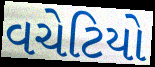
વચેટિયો